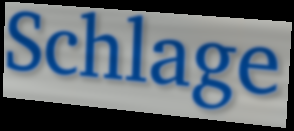
Schlage